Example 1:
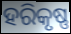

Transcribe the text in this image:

ହରିକୃଷ୍ଣ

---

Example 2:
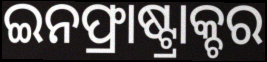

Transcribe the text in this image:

ଇନଫ୍ରାଷ୍ଟ୍ରାକ୍ଚର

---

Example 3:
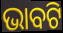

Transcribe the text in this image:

ଭାବଟି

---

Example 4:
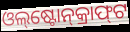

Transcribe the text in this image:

ଓଲ୍‌ଷ୍ଟୋନ୍‌କ୍ରାଫ୍‌ଟ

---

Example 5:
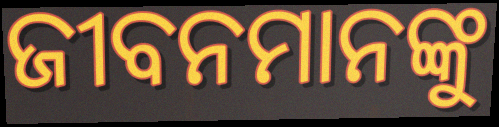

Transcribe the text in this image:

ଜୀବନମାନଙ୍କୁ